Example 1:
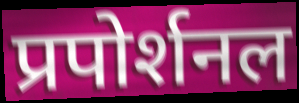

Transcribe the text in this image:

प्रपोर्शनल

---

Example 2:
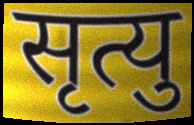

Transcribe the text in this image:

सृत्यु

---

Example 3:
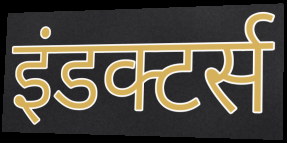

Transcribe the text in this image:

इंडक्टर्स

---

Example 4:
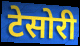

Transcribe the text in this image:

टेसोरी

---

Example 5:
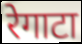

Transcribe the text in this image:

रेगाटा